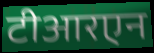
टीआरएन